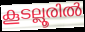
കൂടല്ലൂരിൽ